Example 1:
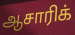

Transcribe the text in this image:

ஆசாரிக்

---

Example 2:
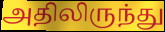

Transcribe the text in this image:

அதிலிருந்து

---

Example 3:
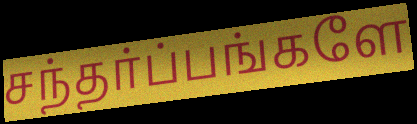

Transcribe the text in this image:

சந்தர்ப்பங்களே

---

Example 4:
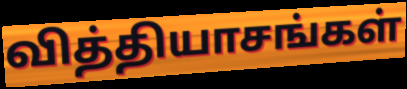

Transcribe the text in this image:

வித்தியாசங்கள்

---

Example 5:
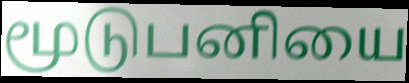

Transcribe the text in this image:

மூடுபனியை